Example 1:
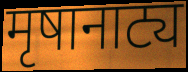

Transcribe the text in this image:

मृषानाट्य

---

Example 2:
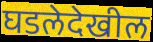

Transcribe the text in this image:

घडलेदेखील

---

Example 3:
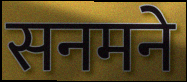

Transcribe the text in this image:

सनमने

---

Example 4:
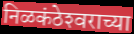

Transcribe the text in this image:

निळकंठेश्वराच्या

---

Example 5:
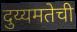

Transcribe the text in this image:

दुय्यमतेची